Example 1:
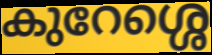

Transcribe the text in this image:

കുറേശ്ശെ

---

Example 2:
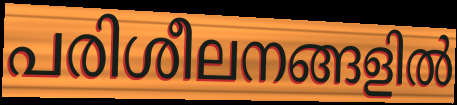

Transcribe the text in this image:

പരിശീലനങ്ങളിൽ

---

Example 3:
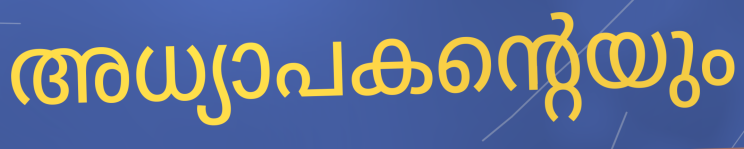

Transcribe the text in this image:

അധ്യാപകന്റെയും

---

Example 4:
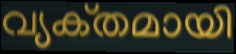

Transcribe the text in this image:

വ്യക്‌തമായി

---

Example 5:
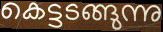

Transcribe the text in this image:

കെട്ടടങ്ങുന്നു